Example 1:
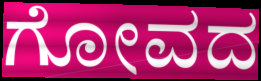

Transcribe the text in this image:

ಗೋವದ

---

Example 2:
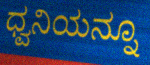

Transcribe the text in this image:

ಧ್ವನಿಯನ್ನೂ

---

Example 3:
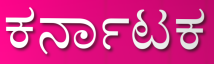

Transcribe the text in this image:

ಕರ್ನಾಟಕ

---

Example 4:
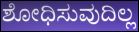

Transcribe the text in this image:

ಶೋಧಿಸುವುದಿಲ್ಲ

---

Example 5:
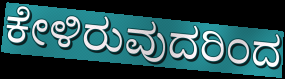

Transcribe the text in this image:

ಕೇಳಿರುವುದರಿಂದ